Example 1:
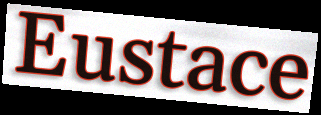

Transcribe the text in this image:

Eustace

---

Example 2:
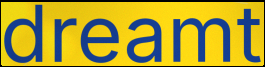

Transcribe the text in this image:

dreamt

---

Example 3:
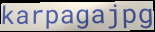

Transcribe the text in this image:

karpagajpg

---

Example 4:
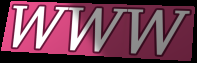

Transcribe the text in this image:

WWW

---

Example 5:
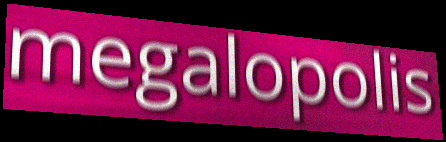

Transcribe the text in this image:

megalopolis